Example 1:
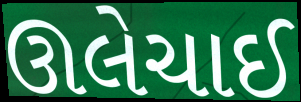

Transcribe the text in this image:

ઊલેચાઈ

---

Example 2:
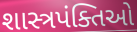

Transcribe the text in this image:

શાસ્ત્રપંક્તિઓ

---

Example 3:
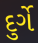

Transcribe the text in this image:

દુર્ગે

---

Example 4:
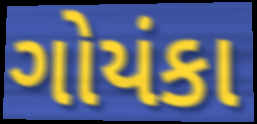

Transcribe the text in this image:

ગોયંકા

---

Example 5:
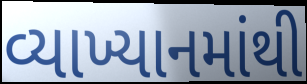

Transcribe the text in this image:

વ્યાખ્યાનમાંથી